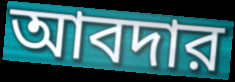
আবদার